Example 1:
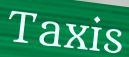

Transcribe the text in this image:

Taxis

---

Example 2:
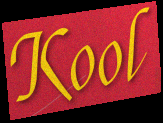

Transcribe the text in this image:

Kool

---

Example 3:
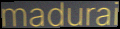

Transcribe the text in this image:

madurai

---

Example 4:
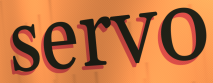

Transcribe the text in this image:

servo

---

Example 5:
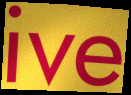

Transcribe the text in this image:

ive